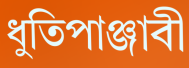
ধুতিপাঞ্জাবী